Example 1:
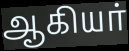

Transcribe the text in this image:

ஆகியர்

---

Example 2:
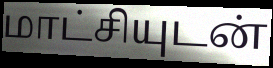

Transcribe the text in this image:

மாட்சியுடன்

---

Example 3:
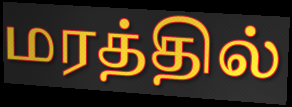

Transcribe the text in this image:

மரத்தில்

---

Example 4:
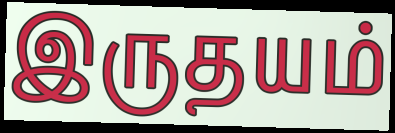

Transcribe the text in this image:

இருதயம்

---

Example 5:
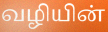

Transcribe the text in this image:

வழியின்